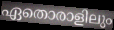
ഏതൊരാളിലും